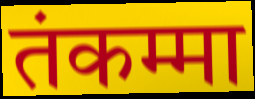
तंकम्मा